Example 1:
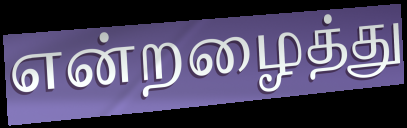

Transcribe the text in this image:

என்றழைத்து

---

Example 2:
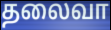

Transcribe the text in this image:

தலைவா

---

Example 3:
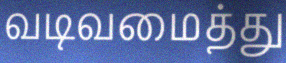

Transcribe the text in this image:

வடிவமைத்து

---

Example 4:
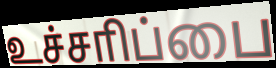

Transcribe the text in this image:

உச்சரிப்பை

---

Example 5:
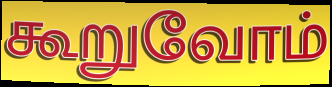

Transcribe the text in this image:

கூறுவோம்